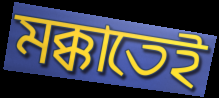
মক্কাতেই